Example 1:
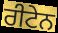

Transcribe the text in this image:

ਰੀਟੇਨ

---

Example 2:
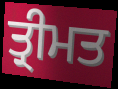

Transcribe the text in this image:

ਤ੍ਰੀਮਤ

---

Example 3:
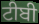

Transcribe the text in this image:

ਟੀਬੀ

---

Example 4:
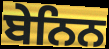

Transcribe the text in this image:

ਬੇਨਿਨ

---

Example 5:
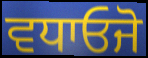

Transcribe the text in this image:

ਵਧਾਓਜੋ